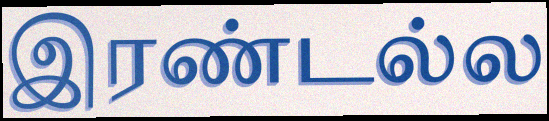
இரண்டல்ல